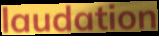
laudation